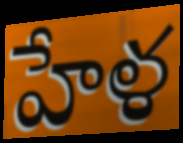
హేళ